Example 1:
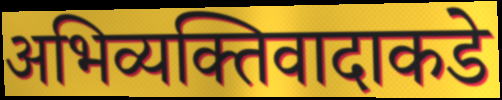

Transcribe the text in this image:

अभिव्यक्तिवादाकडे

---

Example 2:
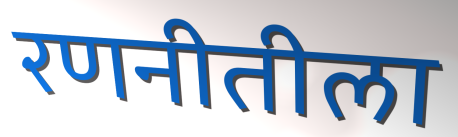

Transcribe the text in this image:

रणनीतीला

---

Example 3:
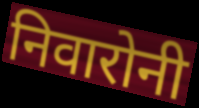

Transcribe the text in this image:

निवारोनी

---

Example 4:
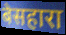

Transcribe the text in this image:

बेसहारा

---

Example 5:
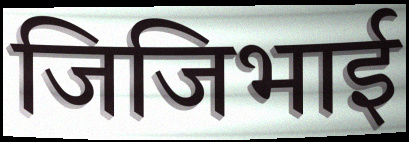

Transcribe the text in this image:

जिजिभाई